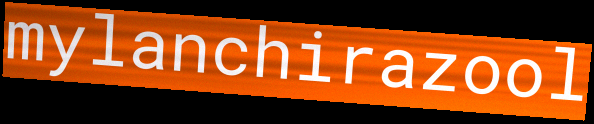
mylanchirazool